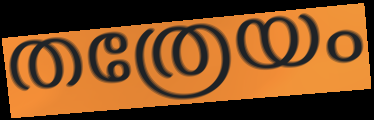
തത്രേയം